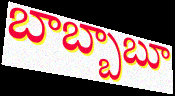
బాబ్బాబూ